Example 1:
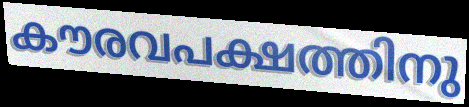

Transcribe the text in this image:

കൗരവപക്ഷത്തിനു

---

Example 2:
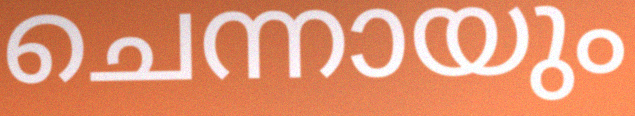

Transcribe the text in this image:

ചെന്നായും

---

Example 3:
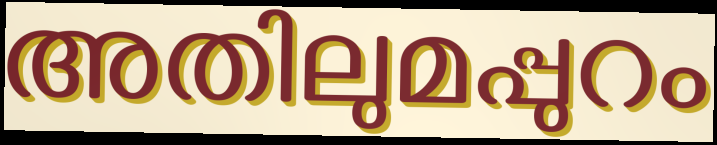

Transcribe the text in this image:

അതിലുമപ്പുറം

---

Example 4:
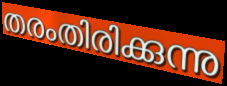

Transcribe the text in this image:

തരംതിരിക്കുന്നു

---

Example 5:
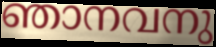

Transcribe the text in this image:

ഞാനവനു